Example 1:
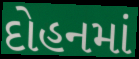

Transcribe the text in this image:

દોહનમાં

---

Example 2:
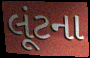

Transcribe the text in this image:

લૂંટના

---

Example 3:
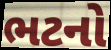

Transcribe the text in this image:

ભટનો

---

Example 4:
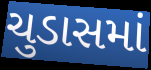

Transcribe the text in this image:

ચુડાસમાં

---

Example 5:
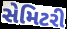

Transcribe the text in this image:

સેમિટરી